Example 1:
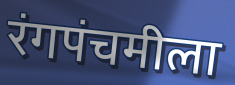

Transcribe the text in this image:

रंगपंचमीला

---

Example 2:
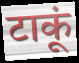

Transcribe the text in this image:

टाकूं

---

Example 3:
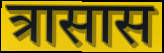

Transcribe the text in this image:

त्रासास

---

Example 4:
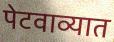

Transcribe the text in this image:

पेटवाव्यात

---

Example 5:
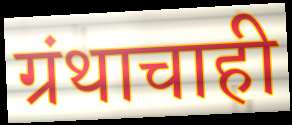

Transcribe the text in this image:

ग्रंथाचाही